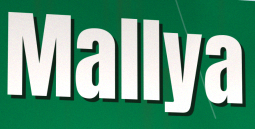
Mallya